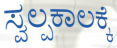
ಸ್ವಲ್ಪಕಾಲಕ್ಕೆ